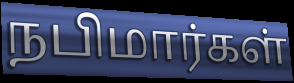
நபிமார்கள்